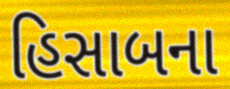
હિસાબના